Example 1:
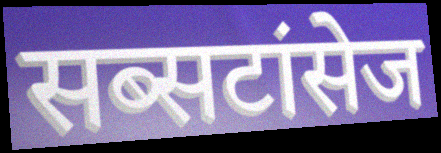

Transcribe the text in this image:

सब्सटांसेज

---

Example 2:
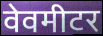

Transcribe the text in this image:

वेवमीटर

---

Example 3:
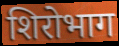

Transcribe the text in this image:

शिरोभाग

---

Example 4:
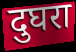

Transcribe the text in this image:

दुघरा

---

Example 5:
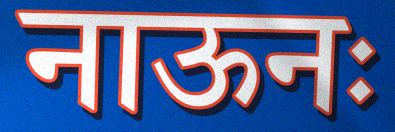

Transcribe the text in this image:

नाऊनः